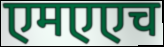
एमएएच